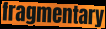
fragmentary